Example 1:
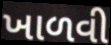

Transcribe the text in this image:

ખાળવી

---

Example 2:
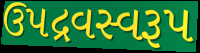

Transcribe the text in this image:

ઉપદ્રવસ્વરૂપ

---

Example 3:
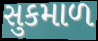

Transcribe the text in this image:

સુકમાળ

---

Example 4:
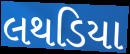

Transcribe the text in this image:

લથડિયા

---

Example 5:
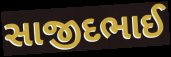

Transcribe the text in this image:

સાજીદભાઈ